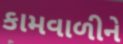
કામવાળીને